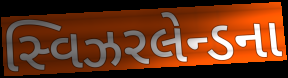
સ્વિઝરલેન્ડના